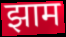
झाम